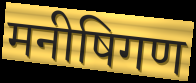
मनीषिगण